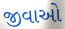
જીવાઓ